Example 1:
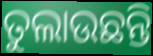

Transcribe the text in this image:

ତୁଲାଉଛନ୍ତି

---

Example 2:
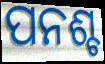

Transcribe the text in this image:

ପନଶ୍ଚ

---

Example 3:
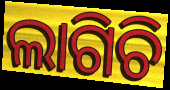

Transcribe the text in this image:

ଲାଗିଚି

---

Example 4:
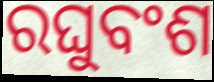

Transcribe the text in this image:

ରଘୁବଂଶ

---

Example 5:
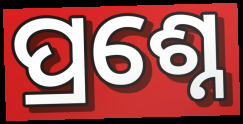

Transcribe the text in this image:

ପ୍ରଶ୍ନେ